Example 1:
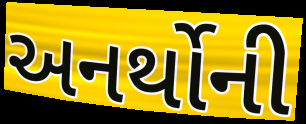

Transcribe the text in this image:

અનર્થોની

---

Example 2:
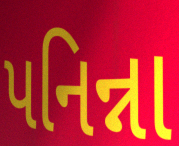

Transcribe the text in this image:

પનિન્ના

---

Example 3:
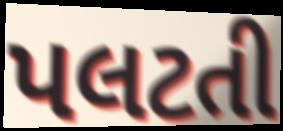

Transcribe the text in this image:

પલટતી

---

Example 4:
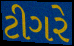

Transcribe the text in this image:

ટીગરે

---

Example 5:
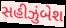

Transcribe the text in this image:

સહીઝુંબેશ